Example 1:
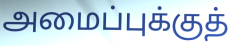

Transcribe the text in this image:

அமைப்புக்குத்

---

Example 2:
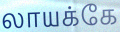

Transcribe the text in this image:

லாயக்கே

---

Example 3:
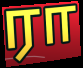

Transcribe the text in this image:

ரா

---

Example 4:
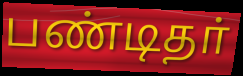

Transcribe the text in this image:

பண்டிதர்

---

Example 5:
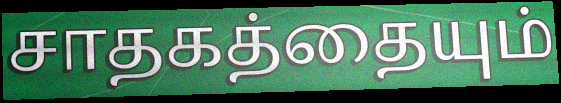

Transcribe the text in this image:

சாதகத்தையும்